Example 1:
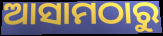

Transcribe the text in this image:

ଆସାମଠାରୁ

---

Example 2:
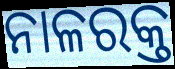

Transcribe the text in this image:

ନାଳରକ୍ତ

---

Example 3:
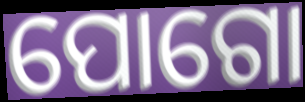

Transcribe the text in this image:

ପୋଗୋ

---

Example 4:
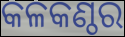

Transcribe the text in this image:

କଳକଣ୍ଠର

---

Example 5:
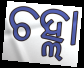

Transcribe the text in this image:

ଚହ୍ଲା